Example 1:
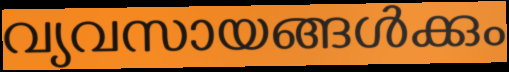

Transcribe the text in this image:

വ്യവസായങ്ങൾക്കും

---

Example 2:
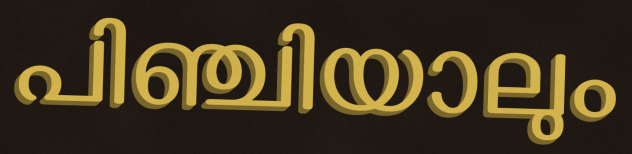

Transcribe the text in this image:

പിഞ്ചിയാലും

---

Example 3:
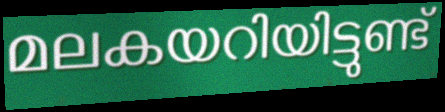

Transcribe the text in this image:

മലകയറിയിട്ടുണ്ട്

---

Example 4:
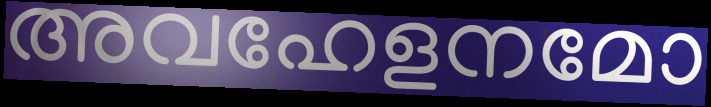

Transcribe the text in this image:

അവഹേളനമോ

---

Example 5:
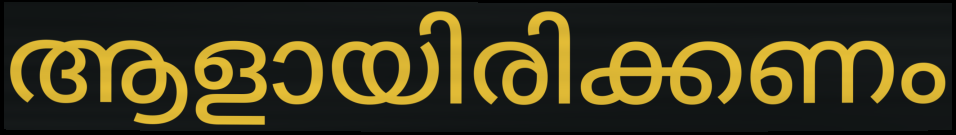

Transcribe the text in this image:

ആളായിരിക്കണം